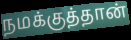
நமக்குத்தான்